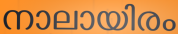
നാലായിരം